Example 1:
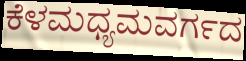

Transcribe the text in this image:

ಕೆಳಮಧ್ಯಮವರ್ಗದ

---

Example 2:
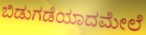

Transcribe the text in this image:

ಬಿಡುಗಡೆಯಾದಮೇಲೆ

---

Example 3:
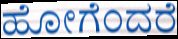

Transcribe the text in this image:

ಹೋಗೆಂದರೆ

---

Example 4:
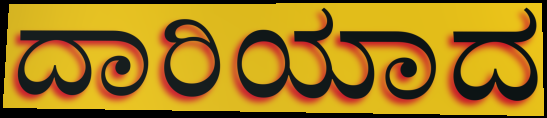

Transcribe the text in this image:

ದಾರಿಯಾದ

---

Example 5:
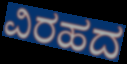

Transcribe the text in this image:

ವಿರಹದ